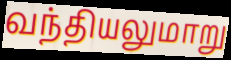
வந்தியலுமாறு